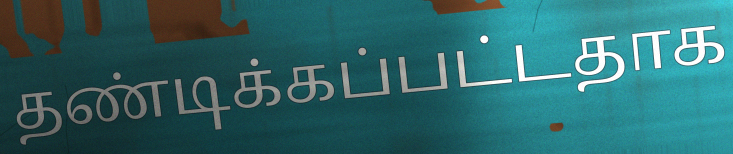
தண்டிக்கப்பட்டதாக